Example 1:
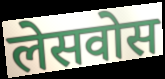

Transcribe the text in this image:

लेसवोस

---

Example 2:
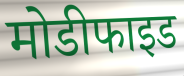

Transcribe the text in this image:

मोडीफाइड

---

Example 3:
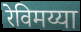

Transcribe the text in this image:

रेविमय्या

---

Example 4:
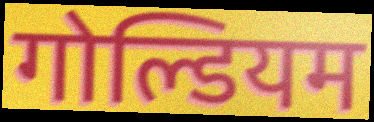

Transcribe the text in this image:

गोल्डियम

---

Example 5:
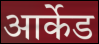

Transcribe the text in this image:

आर्केड